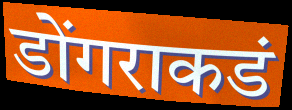
डोंगराकडं